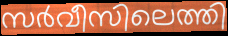
സർവീസിലെത്തി